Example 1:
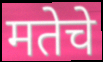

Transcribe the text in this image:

मतेचे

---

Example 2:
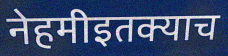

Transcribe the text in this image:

नेहमीइतक्याच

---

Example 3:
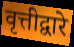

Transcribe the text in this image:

वृत्तीद्वारे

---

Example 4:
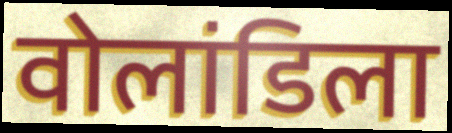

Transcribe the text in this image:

वोलांडिला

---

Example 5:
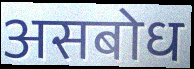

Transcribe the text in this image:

असबोध